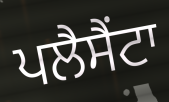
ਪਲੈਸੈਂਟਾ